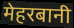
मेहरबानी